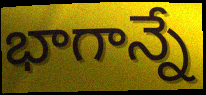
భాగాన్నే